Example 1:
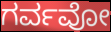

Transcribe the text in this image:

ಗರ್ವವೋ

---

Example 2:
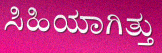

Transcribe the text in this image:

ಸಿಹಿಯಾಗಿತ್ತು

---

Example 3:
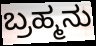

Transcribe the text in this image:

ಬ್ರಹ್ಮನು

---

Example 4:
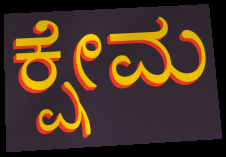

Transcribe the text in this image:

ಕ್ಷೇಮ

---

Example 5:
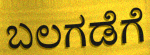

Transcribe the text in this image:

ಬಲಗಡೆಗೆ